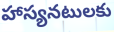
హాస్యనటులకు